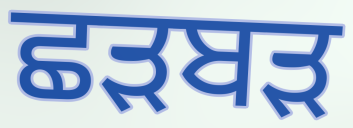
ਛੜਬੜ